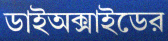
ডাইঅক্সাইডের